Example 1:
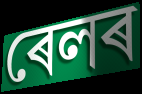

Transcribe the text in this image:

ৰেলৰ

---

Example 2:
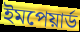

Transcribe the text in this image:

ইমপেয়াৰ্ড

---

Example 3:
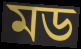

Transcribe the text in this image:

মড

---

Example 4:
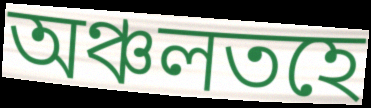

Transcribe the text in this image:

অঞ্চলতহে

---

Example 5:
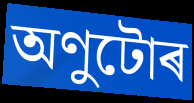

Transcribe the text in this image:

অণুটোৰ